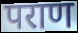
पराण